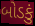
બોડકું